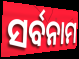
ସର୍ବନାମ